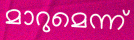
മാറുമെന്ന്